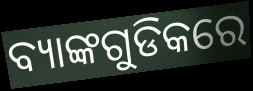
ବ୍ୟାଙ୍କଗୁଡିକରେ